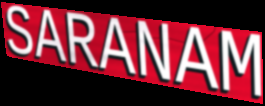
SARANAM